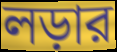
লড়ার